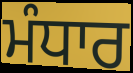
ਮੰਧਾਰ